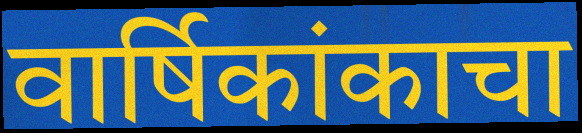
वार्षिकांकाचा